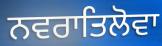
ਨਵਰਾਤਿਲੋਵਾ